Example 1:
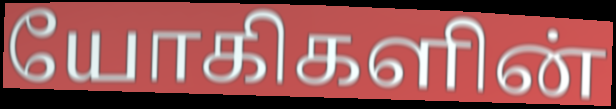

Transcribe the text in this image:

யோகிகளின்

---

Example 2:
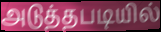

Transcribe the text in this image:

அடுத்தபடியில்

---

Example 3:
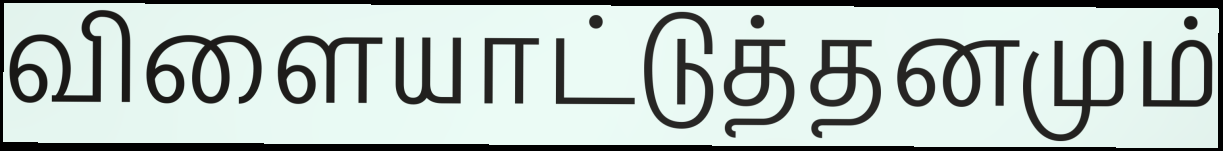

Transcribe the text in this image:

விளையாட்டுத்தனமும்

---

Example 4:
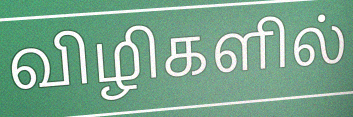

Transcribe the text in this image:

விழிகளில்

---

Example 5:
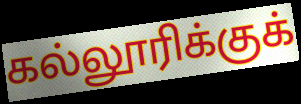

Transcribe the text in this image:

கல்லூரிக்குக்